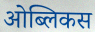
ओब्लिकस